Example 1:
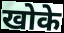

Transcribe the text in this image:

खोके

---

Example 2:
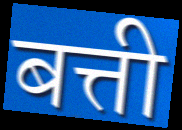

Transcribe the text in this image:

बत्ती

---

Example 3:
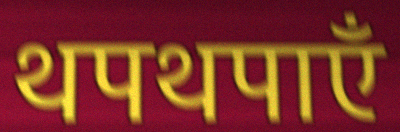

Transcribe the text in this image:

थपथपाएँ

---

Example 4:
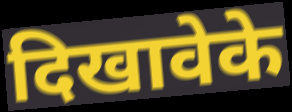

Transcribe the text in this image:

दिखावेके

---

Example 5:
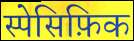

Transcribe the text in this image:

स्पेसिफ़िक